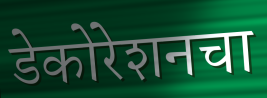
डेकोरेशनचा